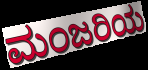
ಮಂಜರಿಯ